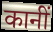
कानीं